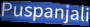
Puspanjali